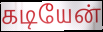
கடியேன்